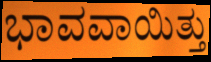
ಭಾವವಾಯಿತ್ತು